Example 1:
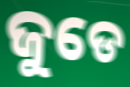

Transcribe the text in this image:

ଜୁଡେ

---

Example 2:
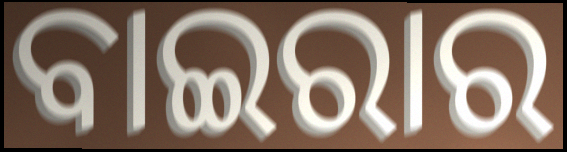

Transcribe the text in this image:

ବାଇରାର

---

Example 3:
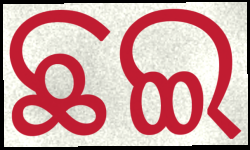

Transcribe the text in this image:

ଛଇ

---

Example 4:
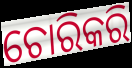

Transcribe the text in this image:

ଚୋରିକରି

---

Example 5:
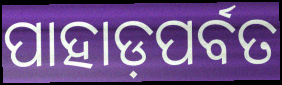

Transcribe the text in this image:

ପାହାଡ଼ପର୍ବତ